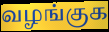
வழங்குக